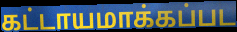
கட்டாயமாக்கப்பட